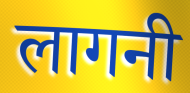
लागनी